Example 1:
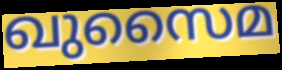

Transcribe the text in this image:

ഖുസൈമ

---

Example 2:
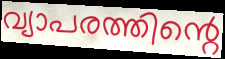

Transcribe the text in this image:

വ്യാപരത്തിന്റെ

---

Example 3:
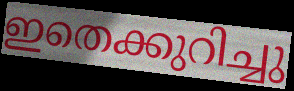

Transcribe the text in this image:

ഇതെക്കുറിച്ചു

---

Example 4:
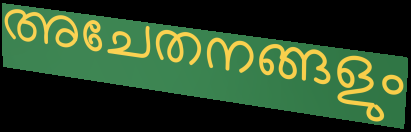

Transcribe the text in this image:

അചേതനങ്ങളും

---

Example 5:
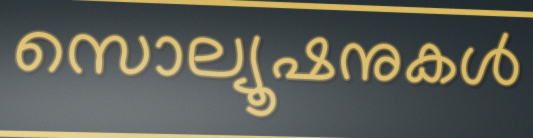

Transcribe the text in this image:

സൊല്യൂഷനുകൾ